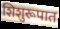
शिशुरूपात